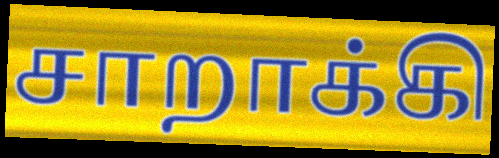
சாறாக்கி